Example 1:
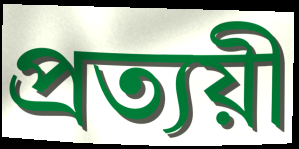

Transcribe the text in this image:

প্রত্যয়ী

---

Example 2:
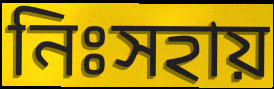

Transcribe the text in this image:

নিঃসহায়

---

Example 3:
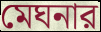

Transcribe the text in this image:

মেঘনার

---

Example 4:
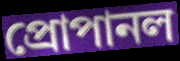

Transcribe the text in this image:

প্রোপানল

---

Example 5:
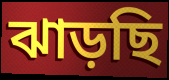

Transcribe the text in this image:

ঝাড়ছি